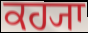
ਕਹ੍ਯਾ